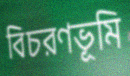
বিচরণভূমি